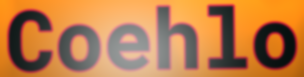
Coehlo